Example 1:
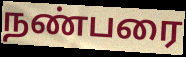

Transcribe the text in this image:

நண்பரை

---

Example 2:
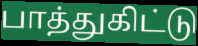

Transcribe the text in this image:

பாத்துகிட்டு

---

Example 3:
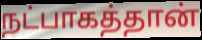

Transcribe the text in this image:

நட்பாகத்தான்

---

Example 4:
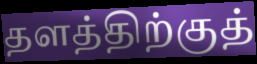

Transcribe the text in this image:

தளத்திற்குத்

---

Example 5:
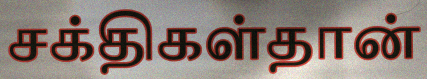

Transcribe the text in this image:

சக்திகள்தான்